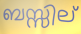
ബസ്സില്